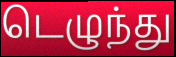
டெழுந்து